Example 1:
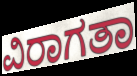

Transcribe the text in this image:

ವಿರಾಗತಾ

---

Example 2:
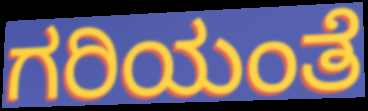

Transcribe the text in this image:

ಗರಿಯಂತೆ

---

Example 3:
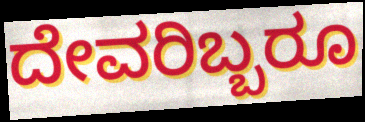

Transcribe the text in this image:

ದೇವರಿಬ್ಬರೂ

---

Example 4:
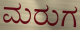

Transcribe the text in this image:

ಮರುಗ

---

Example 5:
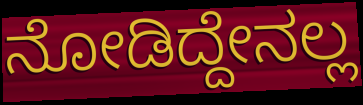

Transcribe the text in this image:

ನೋಡಿದ್ದೇನಲ್ಲ